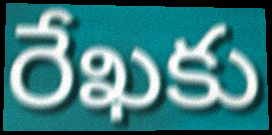
రేఖకు